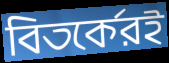
বিতর্কেরই